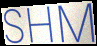
SHM